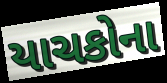
યાચકોના